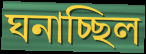
ঘনাচ্ছিল